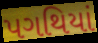
પગથિયાં